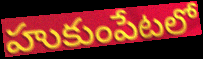
హుకుంపేటలో